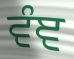
ਵੰਞ